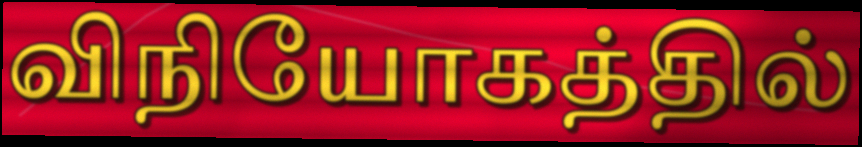
விநியோகத்தில்